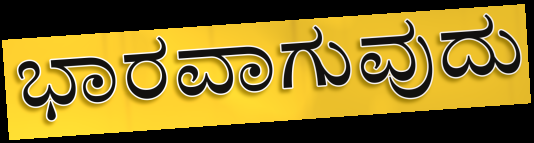
ಭಾರವಾಗುವುದು